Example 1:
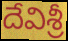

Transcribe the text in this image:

దేవిశ్రీ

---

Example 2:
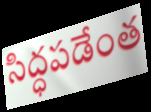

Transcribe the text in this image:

సిద్ధపడేంత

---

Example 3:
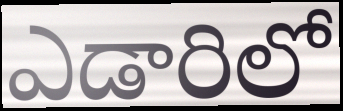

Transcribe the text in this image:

ఎడారిలో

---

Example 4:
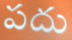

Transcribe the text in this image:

పదు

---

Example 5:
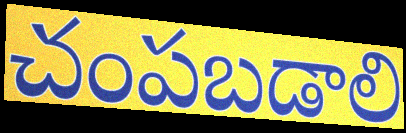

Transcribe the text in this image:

చంపబడాలి